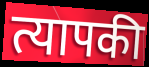
त्यापकी